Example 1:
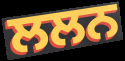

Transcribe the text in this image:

ਲਲਨ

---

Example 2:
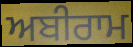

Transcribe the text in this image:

ਅਬੀਰਾਮ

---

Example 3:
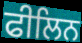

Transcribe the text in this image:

ਫੀਲਿਨ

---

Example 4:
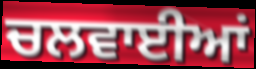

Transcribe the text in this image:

ਚਲਵਾਈਆਂ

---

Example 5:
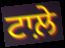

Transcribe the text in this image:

ਟਾਲ਼ੇ